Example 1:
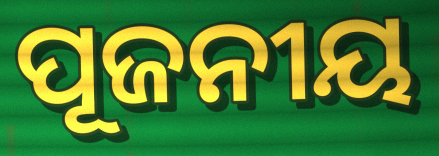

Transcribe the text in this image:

ପୂଜନୀୟ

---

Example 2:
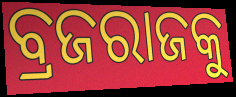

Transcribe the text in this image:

ବ୍ରଜରାଜକୁ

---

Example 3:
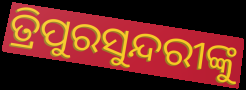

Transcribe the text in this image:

ତ୍ରିପୁରସୁନ୍ଦରୀଙ୍କୁ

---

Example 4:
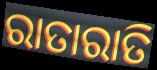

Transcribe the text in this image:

ରାତାରାତି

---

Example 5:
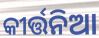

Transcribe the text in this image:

କୀର୍ତ୍ତନିଆ